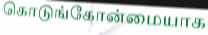
கொடுங்கோன்மையாக